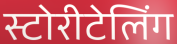
स्टोरीटेलिंग